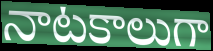
నాటకాలుగా